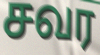
சவர